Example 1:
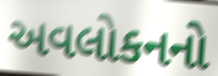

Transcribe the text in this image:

અવલોકનનો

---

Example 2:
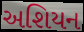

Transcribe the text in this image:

અશિયન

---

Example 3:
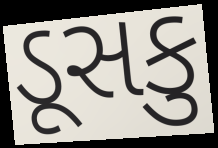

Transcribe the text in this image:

ડૂસકુ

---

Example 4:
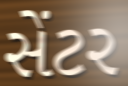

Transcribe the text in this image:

સેંટર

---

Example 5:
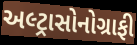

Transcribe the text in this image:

અલ્ટ્રાસોનોગ્રાફી